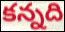
కన్నది